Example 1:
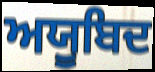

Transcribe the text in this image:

ਅਯੂਬਿਦ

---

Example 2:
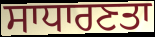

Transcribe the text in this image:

ਸਾਧਾਰਣਤਾ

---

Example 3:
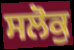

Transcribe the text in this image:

ਸਲੋਕੁ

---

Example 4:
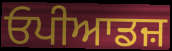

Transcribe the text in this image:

ਓਪੀਆਡਜ਼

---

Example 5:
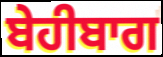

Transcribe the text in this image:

ਬੇਹੀਬਾਗ